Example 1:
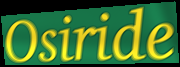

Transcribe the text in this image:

Osiride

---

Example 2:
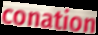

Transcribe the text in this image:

conation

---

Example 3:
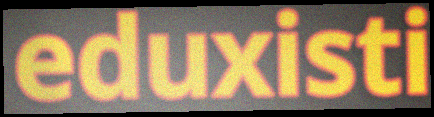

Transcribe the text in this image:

eduxisti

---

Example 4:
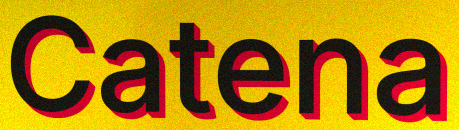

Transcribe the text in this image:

Catena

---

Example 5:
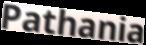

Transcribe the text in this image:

Pathania